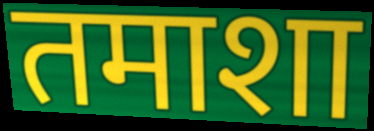
तमाशा